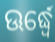
ଊର୍ଦ୍ଧ୍ୱେ